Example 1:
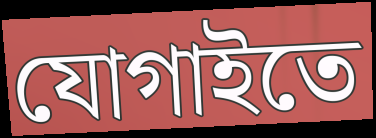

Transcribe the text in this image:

যোগাইতে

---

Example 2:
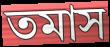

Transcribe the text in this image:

তমাস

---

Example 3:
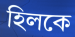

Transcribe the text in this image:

হিলকে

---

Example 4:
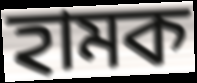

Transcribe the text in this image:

হামক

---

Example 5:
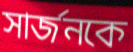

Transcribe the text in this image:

সার্জনকে